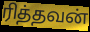
ரித்தவன்